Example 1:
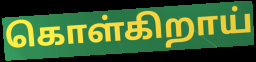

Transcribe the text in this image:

கொள்கிறாய்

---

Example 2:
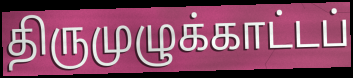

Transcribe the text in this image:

திருமுழுக்காட்டப்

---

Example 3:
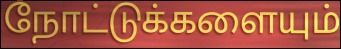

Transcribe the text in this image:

நோட்டுக்களையும்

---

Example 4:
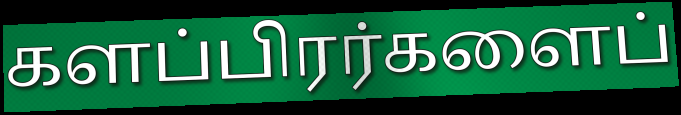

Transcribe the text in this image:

களப்பிரர்களைப்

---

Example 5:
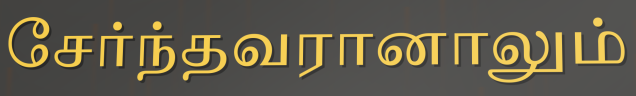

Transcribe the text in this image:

சேர்ந்தவரானாலும்